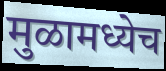
मुळामध्येच